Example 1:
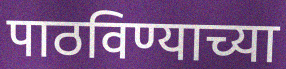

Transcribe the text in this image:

पाठविण्याच्या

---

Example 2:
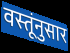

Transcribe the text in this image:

वस्तूंनुसार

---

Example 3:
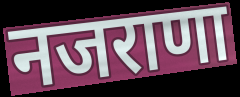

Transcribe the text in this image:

नजराणा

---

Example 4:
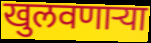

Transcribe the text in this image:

खुलवणाऱ्या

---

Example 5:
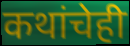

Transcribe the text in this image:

कथांचेही